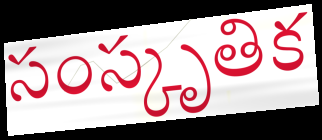
సంస్కృతిక